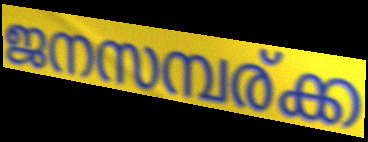
ജനസമ്പര്ക്ക